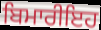
ਬਿਮਾਰੀਇਹ